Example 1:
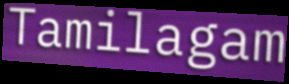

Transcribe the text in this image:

Tamilagam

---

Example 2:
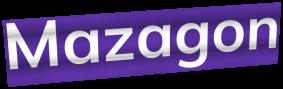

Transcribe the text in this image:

Mazagon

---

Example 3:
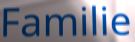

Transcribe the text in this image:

Familie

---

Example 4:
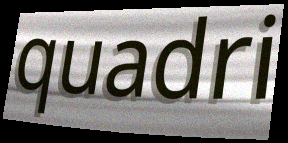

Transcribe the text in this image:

quadri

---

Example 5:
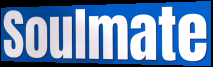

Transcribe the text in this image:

Soulmate